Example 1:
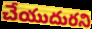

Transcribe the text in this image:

చేయుదురని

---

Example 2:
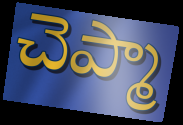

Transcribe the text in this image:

చెప్మా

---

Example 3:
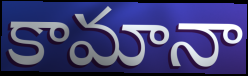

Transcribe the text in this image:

కామానా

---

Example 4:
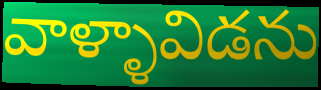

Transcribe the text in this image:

వాళ్ళావిడను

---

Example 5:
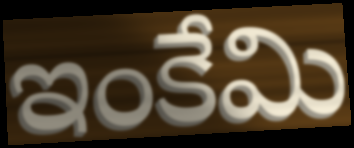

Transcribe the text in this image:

ఇంకేమి